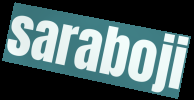
saraboji